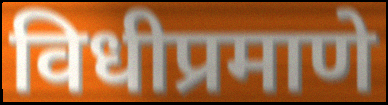
विधीप्रमाणे